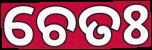
ଚେତଃ